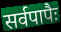
सर्वपापैः